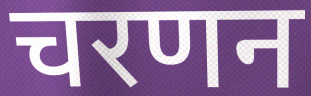
चरणन